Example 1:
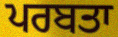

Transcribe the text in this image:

ਪਰਬਤਾ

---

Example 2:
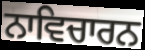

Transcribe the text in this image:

ਨਾਵਿਚਾਰਨ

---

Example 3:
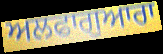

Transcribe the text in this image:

ਅਲਫਾਗੁਆਰਾ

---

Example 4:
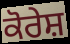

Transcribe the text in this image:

ਕੋਰੇਸ਼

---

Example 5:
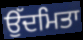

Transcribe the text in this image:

ਉੱਦਮਿਤਾ